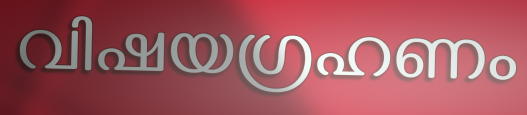
വിഷയഗ്രഹണം